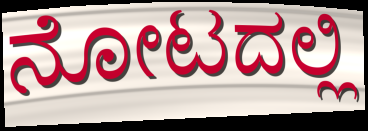
ನೋಟದಲ್ಲಿ